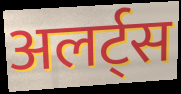
अलर्ट्स